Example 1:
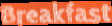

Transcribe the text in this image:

Breakfast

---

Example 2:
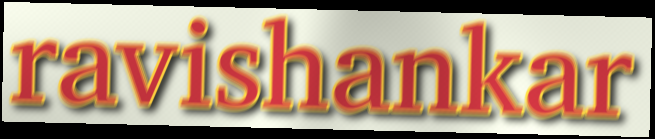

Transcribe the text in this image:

ravishankar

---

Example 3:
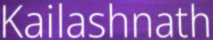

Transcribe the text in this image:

Kailashnath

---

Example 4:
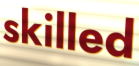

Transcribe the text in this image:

skilled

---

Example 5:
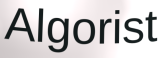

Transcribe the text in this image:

Algorist